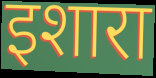
इशारा